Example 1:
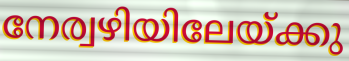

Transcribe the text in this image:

നേര്വഴിയിലേയ്ക്കു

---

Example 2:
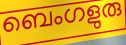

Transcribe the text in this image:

ബെംഗളുരു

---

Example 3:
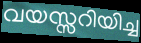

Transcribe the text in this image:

വയസ്സറിയിച്ച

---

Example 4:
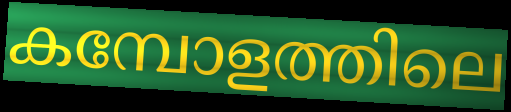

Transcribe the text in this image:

കമ്പോളത്തിലെ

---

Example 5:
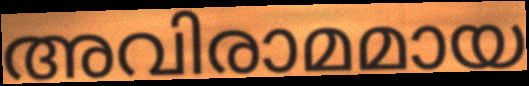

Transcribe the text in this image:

അവിരാമമായ